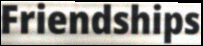
Friendships